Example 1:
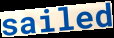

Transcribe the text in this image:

sailed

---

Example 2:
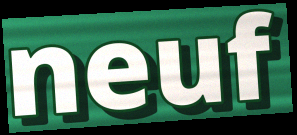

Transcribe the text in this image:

neuf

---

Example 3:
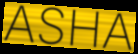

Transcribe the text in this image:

ASHA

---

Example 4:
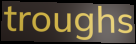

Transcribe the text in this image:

troughs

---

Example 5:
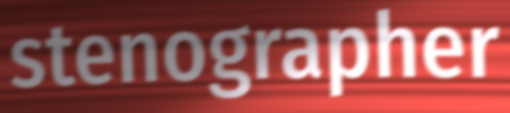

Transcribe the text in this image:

stenographer